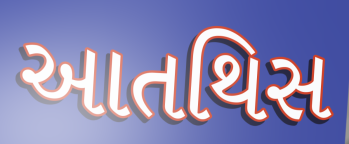
આતથિસ